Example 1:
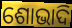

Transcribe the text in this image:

ଶୋଭାଦି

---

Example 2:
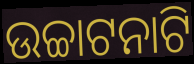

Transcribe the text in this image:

ଉଚ୍ଚାଟନାଟି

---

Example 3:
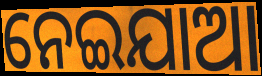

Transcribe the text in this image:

ନେଇଯାଆ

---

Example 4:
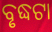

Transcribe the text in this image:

ବୃଦ୍ଧଟା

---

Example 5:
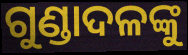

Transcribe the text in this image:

ଗୁଣ୍ଡାଦଳଙ୍କୁ